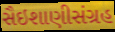
સૈઇશાણીસંગ્રહ